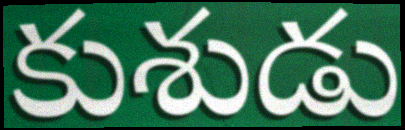
కుశుడు